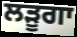
ਲੜੂਗਾ